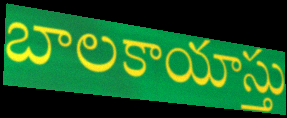
బాలకాయాస్తు